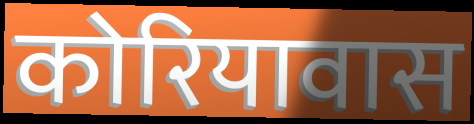
कोरियावास